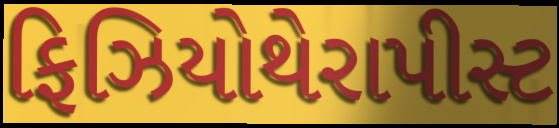
ફિઝિયોથેરાપીસ્ટ